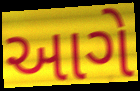
આગે